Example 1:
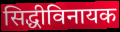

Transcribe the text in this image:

सिद्धीविनायक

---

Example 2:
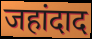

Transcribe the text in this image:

जहांदाद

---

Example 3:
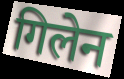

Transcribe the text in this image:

गिलेन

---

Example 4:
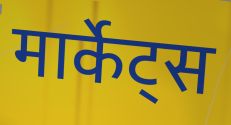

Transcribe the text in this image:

मार्केट्स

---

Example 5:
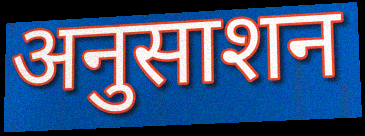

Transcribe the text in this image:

अनुसाशन